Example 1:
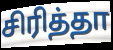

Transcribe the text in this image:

சிரித்தா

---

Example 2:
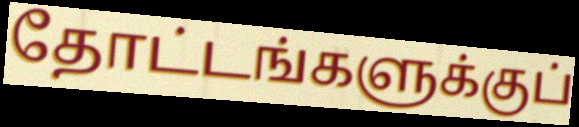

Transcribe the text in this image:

தோட்டங்களுக்குப்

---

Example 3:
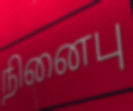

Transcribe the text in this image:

நினைபு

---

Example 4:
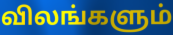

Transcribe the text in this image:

விலங்களும்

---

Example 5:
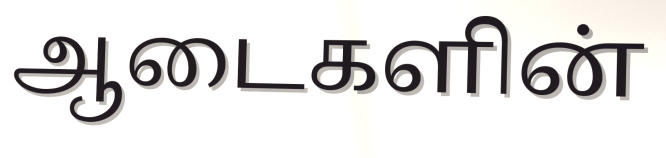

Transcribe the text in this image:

ஆடைகளின்